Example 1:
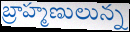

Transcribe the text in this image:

బ్రాహ్మణులున్న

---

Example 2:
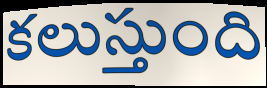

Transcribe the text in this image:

కలుస్తుంది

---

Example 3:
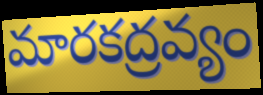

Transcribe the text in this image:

మారకద్రవ్యం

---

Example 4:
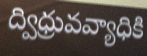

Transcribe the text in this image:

ద్విధ్రువవ్యాధికి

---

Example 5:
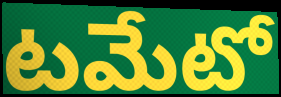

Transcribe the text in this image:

టమేటో